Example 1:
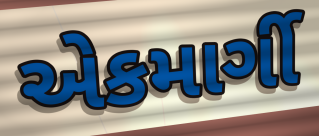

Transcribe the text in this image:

એકમાર્ગી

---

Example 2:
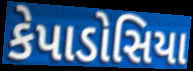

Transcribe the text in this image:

કેપાડોસિયા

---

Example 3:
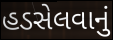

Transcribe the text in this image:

હડસેલવાનું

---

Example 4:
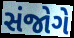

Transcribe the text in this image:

સંજોગે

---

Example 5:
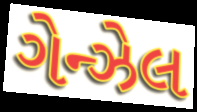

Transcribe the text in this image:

ગેન્ઝેલ